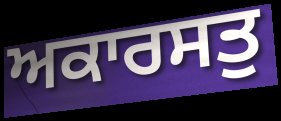
ਅਕਾਰਸਤੁ